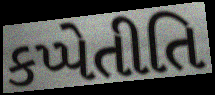
કપ્પેતીતિ